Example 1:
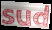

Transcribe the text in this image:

sud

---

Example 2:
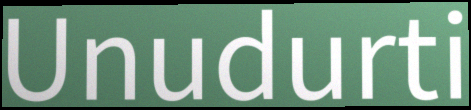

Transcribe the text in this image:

Unudurti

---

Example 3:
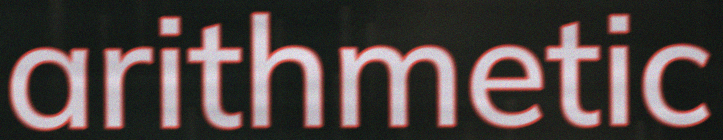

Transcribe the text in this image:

arithmetic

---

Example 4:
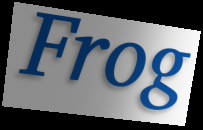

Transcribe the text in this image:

Frog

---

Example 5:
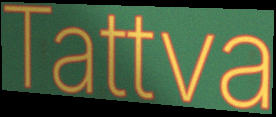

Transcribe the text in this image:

Tattva